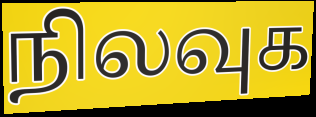
நிலவுக